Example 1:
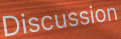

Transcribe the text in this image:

Discussion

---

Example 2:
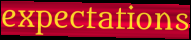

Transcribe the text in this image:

expectations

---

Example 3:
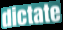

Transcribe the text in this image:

dictate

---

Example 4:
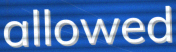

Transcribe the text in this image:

allowed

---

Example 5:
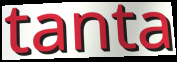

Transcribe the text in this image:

tanta